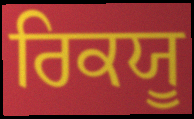
ਰਿਕਯੂ